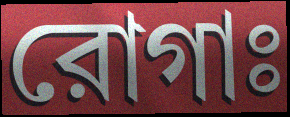
রোগাঃ